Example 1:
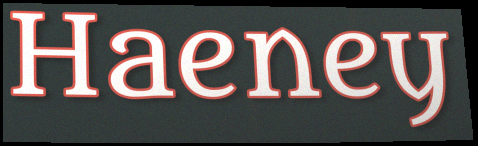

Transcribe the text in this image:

Haeney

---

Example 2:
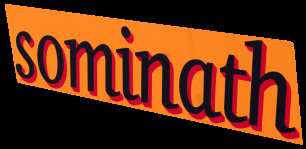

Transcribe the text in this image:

sominath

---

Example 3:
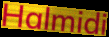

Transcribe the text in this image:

Halmidi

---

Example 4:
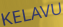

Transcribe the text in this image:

KELAVU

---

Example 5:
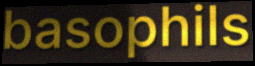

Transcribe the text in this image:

basophils